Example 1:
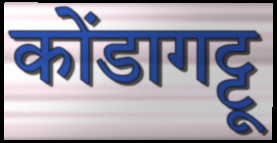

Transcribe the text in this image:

कोंडागट्टू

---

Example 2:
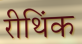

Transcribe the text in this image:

रीथिंक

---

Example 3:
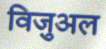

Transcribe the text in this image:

विजुअल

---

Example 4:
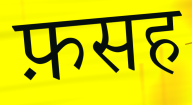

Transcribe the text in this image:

फ़सह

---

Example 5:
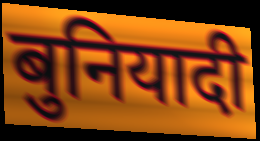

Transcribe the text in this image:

बुनियादी